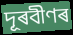
দূৰবীণৰ